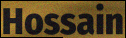
Hossain